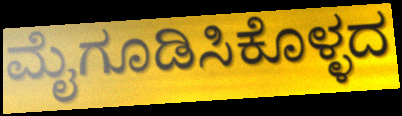
ಮೈಗೂಡಿಸಿಕೊಳ್ಳದ